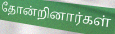
தோன்றினார்கள்